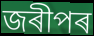
জৰীপৰ